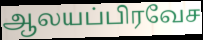
ஆலயப்பிரவேச